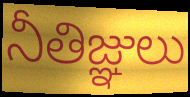
నీతిజ్ఞులు